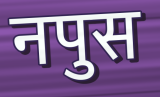
नपुस